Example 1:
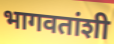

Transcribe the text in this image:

भागवतांशी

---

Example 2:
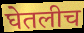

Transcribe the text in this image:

घेतलीच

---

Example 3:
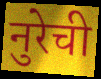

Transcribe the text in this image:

नुरेची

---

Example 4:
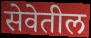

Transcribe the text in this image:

सेवेतील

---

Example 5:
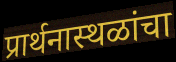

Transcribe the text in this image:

प्रार्थनास्थळांचा